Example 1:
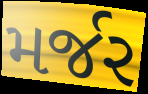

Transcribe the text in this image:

મર્જર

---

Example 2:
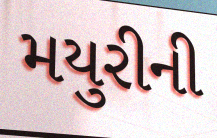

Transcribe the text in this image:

મયુરીની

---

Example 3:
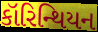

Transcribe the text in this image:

કૉરિન્થિયન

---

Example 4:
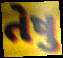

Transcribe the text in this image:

તેષુ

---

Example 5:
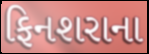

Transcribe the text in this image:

ફિનશરાના